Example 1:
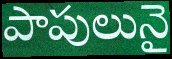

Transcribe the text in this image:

పాపులునై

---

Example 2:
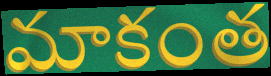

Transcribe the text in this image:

మాకంత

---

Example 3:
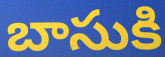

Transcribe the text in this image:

బాసుకి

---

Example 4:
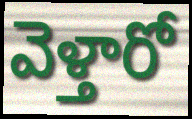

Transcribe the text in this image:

వెళ్తారో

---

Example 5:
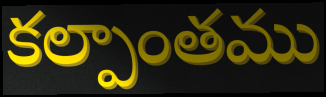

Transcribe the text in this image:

కల్పాంతము